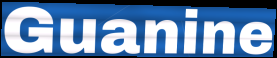
Guanine